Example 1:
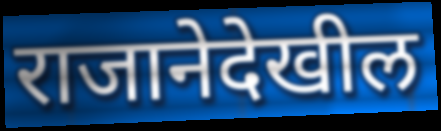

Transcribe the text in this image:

राजानेदेखील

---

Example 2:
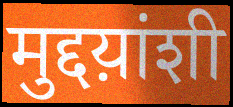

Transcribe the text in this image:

मुद्दय़ांशी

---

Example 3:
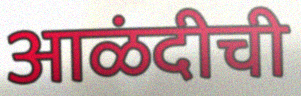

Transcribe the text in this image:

आळंदीची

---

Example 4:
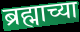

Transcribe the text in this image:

ब्रह्माच्या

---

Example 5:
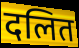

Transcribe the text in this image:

दलित